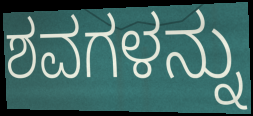
ಶವಗಳನ್ನು